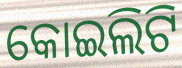
କୋଇଲିଟି